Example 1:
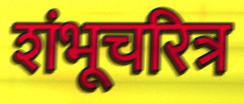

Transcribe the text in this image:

शंभूचरित्र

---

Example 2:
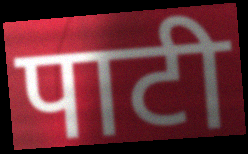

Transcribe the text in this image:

पाटी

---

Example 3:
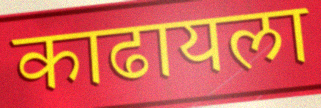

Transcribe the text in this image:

काढायला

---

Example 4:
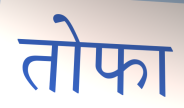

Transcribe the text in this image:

तोफा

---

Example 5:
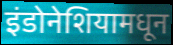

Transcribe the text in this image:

इंडोनेशियामधून